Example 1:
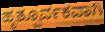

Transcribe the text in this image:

ಹೃತ್ಪೂರ್ವಕವಾಗಿ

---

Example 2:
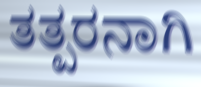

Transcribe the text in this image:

ತತ್ಪರನಾಗಿ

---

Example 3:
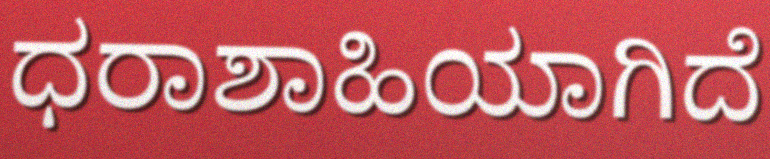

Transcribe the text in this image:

ಧರಾಶಾಹಿಯಾಗಿದೆ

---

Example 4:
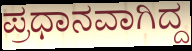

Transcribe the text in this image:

ಪ್ರಧಾನವಾಗಿದ್ದ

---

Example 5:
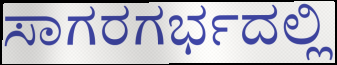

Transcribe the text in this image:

ಸಾಗರಗರ್ಭದಲ್ಲಿ